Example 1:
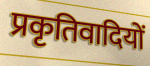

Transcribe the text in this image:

प्रकृतिवादियों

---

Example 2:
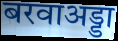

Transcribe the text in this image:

बरवाअड्डा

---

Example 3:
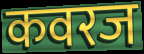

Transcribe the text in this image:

कवरज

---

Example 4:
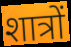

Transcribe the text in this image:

शात्रों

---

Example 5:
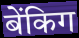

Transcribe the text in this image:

बेंकिग